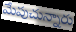
మేపుచున్నారు